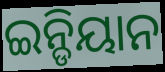
ଇନ୍ଡିୟାନ